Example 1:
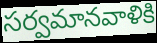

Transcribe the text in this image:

సర్వమానవాళికి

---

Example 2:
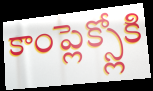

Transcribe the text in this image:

కాంప్లెక్స్లోకి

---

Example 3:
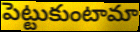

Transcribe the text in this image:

పెట్టుకుంటామా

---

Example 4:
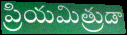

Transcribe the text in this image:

ప్రియమిత్రుడా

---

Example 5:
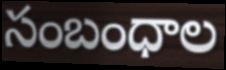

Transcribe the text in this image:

సంబంధాల